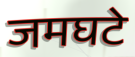
जमघटे